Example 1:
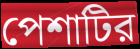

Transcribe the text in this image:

পেশাটির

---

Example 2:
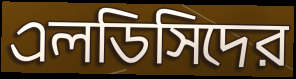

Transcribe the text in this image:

এলডিসিদের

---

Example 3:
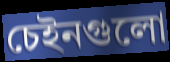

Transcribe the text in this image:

চেইনগুলো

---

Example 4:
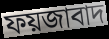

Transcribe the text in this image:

ফয়জাবাদ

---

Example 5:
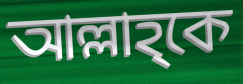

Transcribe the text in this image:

আল্লাহ্কে